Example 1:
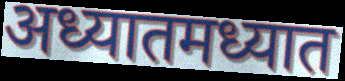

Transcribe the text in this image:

अध्यातमध्यात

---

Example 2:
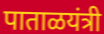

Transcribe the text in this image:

पाताळयंत्री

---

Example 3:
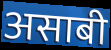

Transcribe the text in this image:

असाबी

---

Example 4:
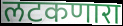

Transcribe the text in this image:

लटकणारा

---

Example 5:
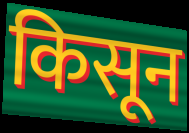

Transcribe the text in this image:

किसून